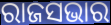
ରାଜସଭାର